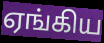
ஏங்கிய